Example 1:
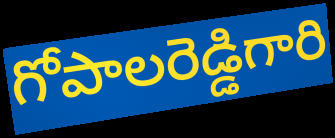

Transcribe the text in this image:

గోపాలరెడ్డిగారి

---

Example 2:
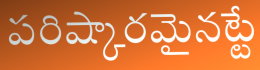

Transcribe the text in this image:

పరిష్కారమైనట్టే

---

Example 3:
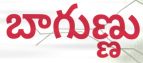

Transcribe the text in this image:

బాగుణ్ణు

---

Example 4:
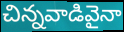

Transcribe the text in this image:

చిన్నవాడివైనా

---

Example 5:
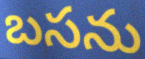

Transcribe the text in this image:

బసను